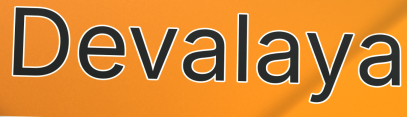
Devalaya